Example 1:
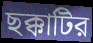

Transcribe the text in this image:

ছক্কাটির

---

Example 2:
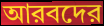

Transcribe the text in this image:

আরবদের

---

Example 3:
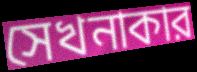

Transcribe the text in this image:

সেখনাকার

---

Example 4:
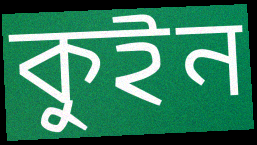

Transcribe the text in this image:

কুইন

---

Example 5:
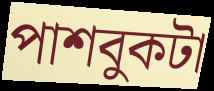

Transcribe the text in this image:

পাশবুকটা